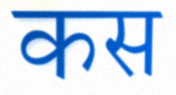
कस